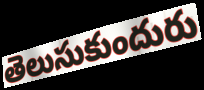
తెలుసుకుందురు